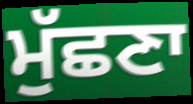
ਮੁੱਛਣਾ